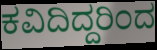
ಕವಿದಿದ್ದರಿಂದ